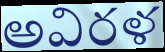
అవిరళ